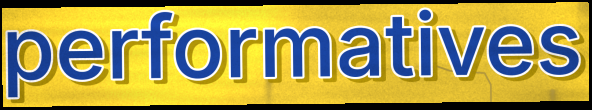
performatives